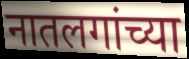
नातलगांच्या